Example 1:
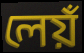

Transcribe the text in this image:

লেয়ঁ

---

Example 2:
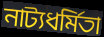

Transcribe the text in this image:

নাট্যধর্মিতা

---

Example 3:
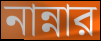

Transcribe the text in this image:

নান্নার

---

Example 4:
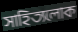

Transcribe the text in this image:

সাহিত্যলোক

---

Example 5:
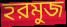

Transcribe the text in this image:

হরমুজ